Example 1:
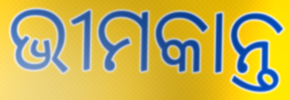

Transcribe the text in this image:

ଭୀମକାନ୍ତ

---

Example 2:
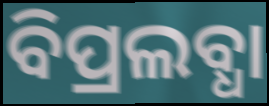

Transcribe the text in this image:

ବିପ୍ରଲବ୍ଧା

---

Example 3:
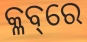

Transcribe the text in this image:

କ୍ଳବ୍‌ରେ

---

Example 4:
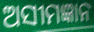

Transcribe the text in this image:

ଅସୀମଜ୍ଞାନ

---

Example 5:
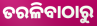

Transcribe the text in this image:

ତରଳିବାଠାରୁ